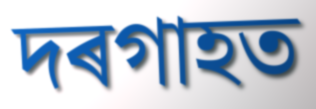
দৰগাহত